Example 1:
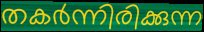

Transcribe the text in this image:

തകർന്നിരിക്കുന്ന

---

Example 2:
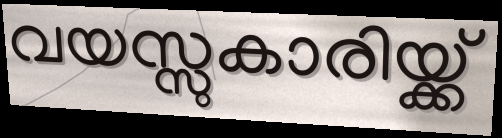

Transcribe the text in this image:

വയസ്സുകാരിയ്ക്ക്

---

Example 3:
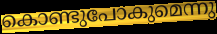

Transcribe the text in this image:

കൊണ്ടുപോകുമെന്നു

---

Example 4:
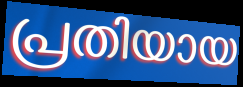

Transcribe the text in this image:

പ്രതിയായ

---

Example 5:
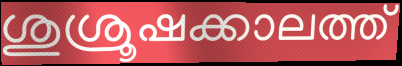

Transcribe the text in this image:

ശുശ്രൂഷക്കാലത്ത്